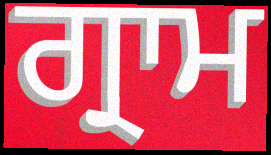
ਗ੍ਰਾਮ